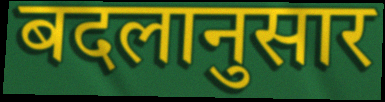
बदलानुसार